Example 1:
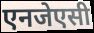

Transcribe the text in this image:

एनजेएसी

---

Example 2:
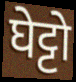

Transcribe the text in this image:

घेट्टो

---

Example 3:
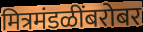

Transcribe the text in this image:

मित्रमंडळींबरोबर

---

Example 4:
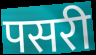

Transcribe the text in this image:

पसरी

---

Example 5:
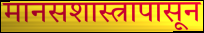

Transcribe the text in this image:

मानसशास्त्रापासून